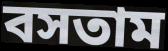
বসতাম